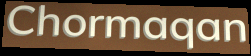
Chormaqan